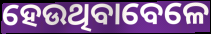
ହେଉଥିବାବେଳେ